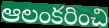
ఆలంకరించి